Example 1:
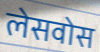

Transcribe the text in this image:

लेसवोस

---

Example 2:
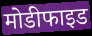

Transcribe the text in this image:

मोडीफाइड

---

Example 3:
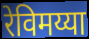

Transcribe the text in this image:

रेविमय्या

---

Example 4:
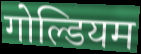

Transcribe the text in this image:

गोल्डियम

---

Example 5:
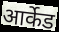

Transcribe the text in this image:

आर्केड